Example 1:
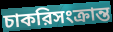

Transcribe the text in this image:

চাকরিসংক্রান্ত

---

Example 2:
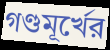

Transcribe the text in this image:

গণ্ডমূর্খের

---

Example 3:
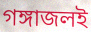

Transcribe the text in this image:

গঙ্গাজলই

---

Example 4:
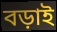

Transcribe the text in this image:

বড়াই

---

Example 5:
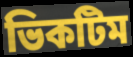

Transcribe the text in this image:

ভিকটিম